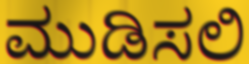
ಮುಡಿಸಲಿ